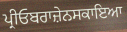
ਪ੍ਰੀਓਬਰਾਜ਼ੇਨਸਕਾਇਆ